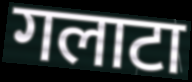
गलाटा